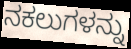
ನಕಲುಗಳನ್ನು